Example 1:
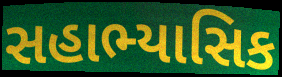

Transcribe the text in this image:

સહાભ્યાસિક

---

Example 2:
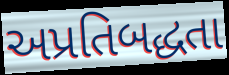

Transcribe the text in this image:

અપ્રતિબદ્ધતા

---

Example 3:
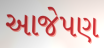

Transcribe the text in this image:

આજેપણ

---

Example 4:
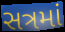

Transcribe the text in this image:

સત્રમાં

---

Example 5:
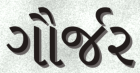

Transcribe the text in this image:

ગૌર્જર